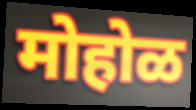
मोहोळ